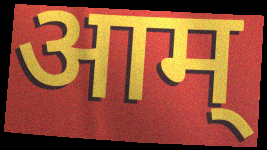
आम्